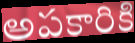
అపకారికి